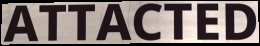
ATTACTED